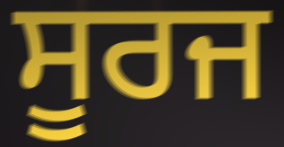
ਸੂਰਜ